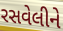
રસવેલીને